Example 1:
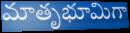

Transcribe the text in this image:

మాతృభూమిగా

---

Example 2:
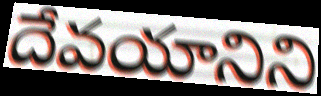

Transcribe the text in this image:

దేవయానిని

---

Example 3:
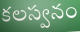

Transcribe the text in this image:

కలస్వనం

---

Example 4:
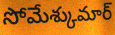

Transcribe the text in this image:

సోమేశ్కుమార్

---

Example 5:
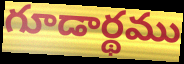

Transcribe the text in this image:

గూడార్థము